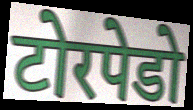
टोरपेडो